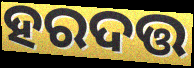
ହରଦତ୍ତ